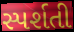
સ્પર્શતી